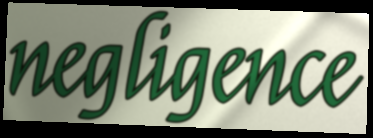
negligence